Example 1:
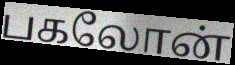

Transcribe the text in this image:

பகலோன்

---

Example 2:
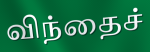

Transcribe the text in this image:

விந்தைச்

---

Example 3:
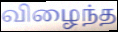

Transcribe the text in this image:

விழைந்த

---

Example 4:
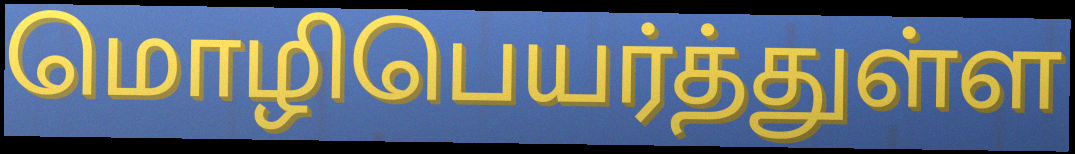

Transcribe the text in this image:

மொழிபெயர்த்துள்ள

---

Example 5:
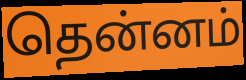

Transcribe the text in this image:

தென்னம்